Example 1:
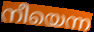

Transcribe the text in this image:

നീയെന്ന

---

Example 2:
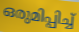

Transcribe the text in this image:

ഒരുമിപ്പിച്ച്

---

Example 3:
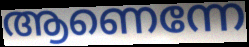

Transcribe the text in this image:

ആണെന്നേ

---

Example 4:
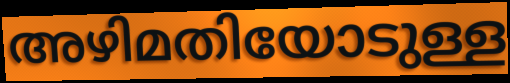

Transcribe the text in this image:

അഴിമതിയോടുള്ള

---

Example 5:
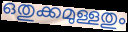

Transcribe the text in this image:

ഒതുക്കമുള്ളതും